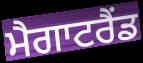
ਮੈਗਾਟਰੈਂਡ